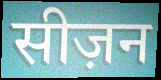
सीज़न